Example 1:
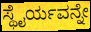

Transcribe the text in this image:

ಸ್ಥೈರ್ಯವನ್ನೇ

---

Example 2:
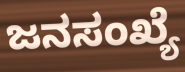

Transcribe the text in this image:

ಜನಸಂಖ್ಯೆ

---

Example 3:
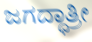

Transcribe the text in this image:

ಜಗದ್ಧಾತ್ರೀ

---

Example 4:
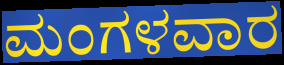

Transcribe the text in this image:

ಮಂಗಳವಾರ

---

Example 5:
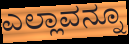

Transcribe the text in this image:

ಎಲ್ಲಾವನ್ನೂ